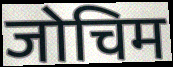
जोचिम